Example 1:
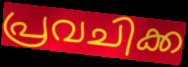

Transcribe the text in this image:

പ്രവചിക്ക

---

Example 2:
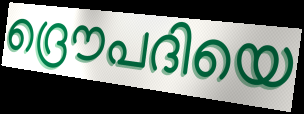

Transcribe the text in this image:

ദ്രൌപദിയെ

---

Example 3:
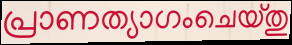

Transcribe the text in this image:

പ്രാണത്യാഗംചെയ്തു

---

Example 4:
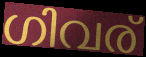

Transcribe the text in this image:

ഗിവര്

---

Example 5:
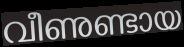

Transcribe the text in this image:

വീണുണ്ടായ